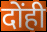
दोंही